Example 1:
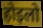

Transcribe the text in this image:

होइलो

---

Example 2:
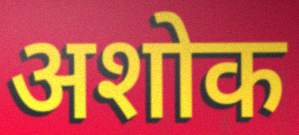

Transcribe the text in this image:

अशोक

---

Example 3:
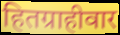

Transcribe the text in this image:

हितग्राहीवार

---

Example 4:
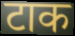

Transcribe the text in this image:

टाक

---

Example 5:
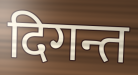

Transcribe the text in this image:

दिगन्त